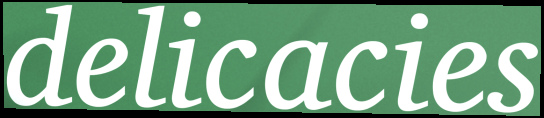
delicacies